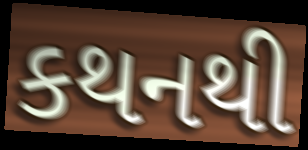
કથનથી